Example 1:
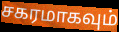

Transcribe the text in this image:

சகரமாகவும்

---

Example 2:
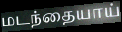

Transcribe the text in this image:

மடந்தையாய்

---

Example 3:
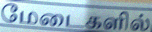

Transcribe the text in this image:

மேடைகளில்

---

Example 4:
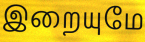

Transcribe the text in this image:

இறையுமே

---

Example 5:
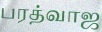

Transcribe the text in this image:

பரத்வாஜ